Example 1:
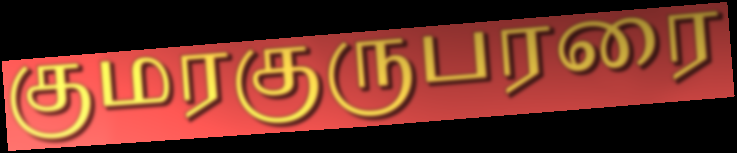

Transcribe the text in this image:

குமரகுருபரரை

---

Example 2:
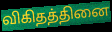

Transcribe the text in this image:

விகிதத்தினை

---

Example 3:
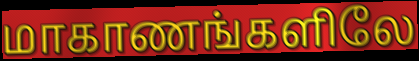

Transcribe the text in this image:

மாகாணங்களிலே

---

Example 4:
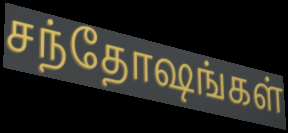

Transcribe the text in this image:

சந்தோஷங்கள்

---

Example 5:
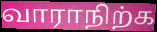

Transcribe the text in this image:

வாராநிற்க